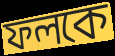
ফলকে